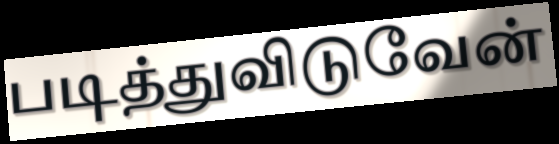
படித்துவிடுவேன்